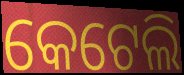
କେଟେଲି